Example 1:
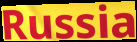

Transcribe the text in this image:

Russia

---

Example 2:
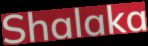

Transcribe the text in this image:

Shalaka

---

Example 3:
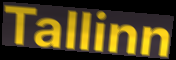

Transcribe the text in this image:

Tallinn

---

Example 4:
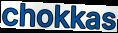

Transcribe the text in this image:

chokkas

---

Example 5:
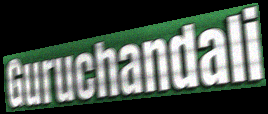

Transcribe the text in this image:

Guruchandali